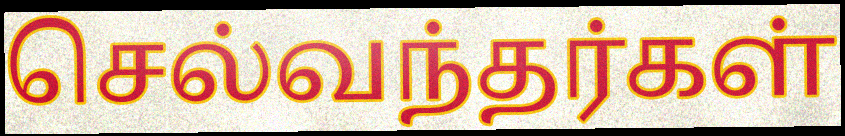
செல்வந்தர்கள்